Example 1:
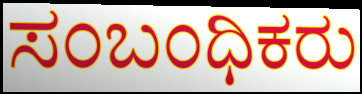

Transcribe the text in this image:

ಸಂಬಂಧಿಕರು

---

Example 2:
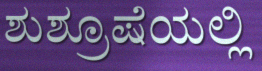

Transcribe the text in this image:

ಶುಶ್ರೂಷೆಯಲ್ಲಿ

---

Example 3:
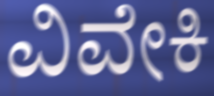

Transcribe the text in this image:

ವಿವೇಕಿ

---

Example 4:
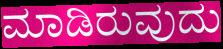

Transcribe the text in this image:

ಮಾಡಿರುವುದು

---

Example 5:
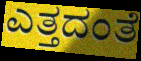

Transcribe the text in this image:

ಎತ್ತದಂತೆ